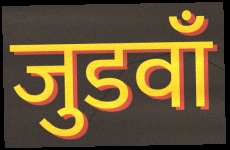
जुडवाँ